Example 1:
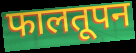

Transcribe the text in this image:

फालतूपन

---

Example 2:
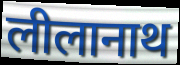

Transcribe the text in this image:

लीलानाथ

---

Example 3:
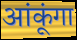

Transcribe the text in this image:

आंकूंगा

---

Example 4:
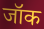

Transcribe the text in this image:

जॉक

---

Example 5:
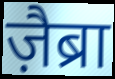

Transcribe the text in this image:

ज़ैब्रा